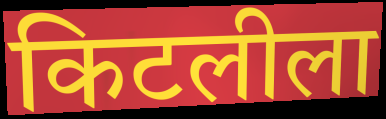
किटलीला